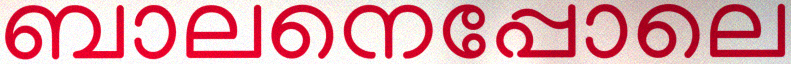
ബാലനെപ്പോലെ